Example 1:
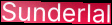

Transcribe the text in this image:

Sunderlal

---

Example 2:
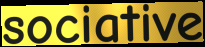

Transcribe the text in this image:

sociative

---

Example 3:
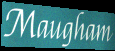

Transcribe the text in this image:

Maugham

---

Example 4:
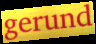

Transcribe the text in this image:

gerund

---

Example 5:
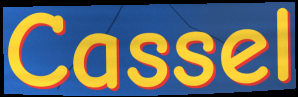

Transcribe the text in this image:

Cassel